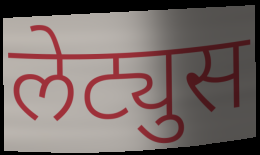
लेट्युस